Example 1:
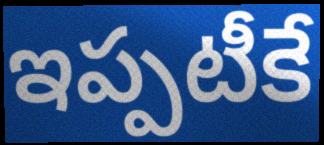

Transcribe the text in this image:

ఇప్పటీకే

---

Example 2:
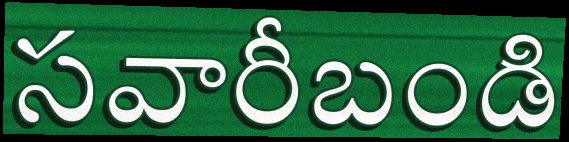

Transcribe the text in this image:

సవారీబండి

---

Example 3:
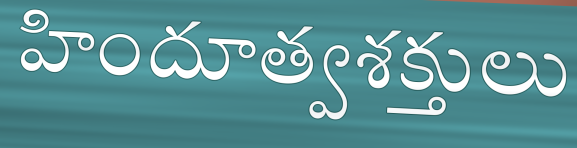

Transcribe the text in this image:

హిందూత్వశక్తులు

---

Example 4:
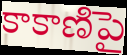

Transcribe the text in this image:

కాకాణిపై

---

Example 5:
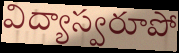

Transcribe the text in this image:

విద్యాస్వరూపో